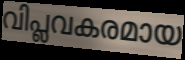
വിപ്ലവകരമായ